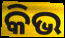
କିଭ